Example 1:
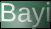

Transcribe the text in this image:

Bayi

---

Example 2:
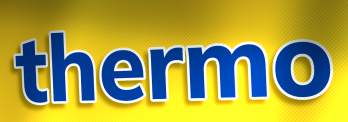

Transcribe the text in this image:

thermo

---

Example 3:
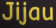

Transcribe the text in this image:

Jijau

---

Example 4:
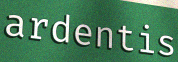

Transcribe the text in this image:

ardentis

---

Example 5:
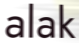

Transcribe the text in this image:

alak